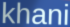
khani